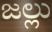
జల్లు